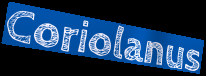
Coriolanus